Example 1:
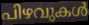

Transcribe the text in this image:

പിഴവുകൾ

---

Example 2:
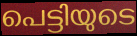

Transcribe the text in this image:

പെട്ടിയുടെ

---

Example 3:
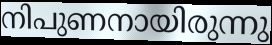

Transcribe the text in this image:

നിപുണനായിരുന്നു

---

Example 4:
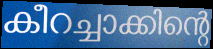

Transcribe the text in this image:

കീറച്ചാക്കിന്റെ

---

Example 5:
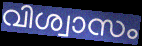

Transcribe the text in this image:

വിശ്വാസം